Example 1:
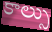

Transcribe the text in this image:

కాల్సు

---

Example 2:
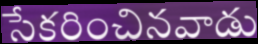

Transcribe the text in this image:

సేకరించినవాడు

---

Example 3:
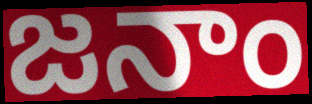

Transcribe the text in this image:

జనాం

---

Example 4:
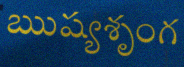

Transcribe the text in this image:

ఋష్యశృంగ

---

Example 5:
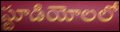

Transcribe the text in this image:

స్టూడియోలలో